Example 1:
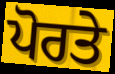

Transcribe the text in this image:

ਪੋਰਤੇ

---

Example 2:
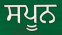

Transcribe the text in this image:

ਸਪੂਨ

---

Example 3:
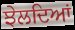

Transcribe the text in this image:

ਝੇਲਦਿਆਂ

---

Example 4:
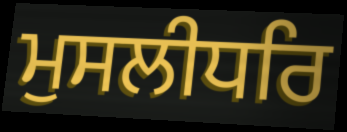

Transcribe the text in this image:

ਮੁਸਲੀਧਰਿ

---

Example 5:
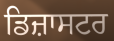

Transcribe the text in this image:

ਡਿਜ਼ਾਸਟਰ